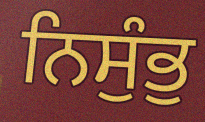
ਨਿਸੁੰਭੁ